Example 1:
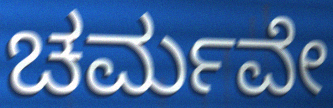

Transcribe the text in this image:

ಚರ್ಮವೇ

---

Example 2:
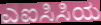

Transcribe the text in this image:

ಎಐಸಿಸಿಯ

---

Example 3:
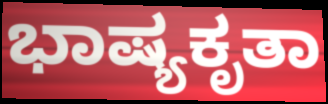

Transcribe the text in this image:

ಭಾಷ್ಯಕೃತಾ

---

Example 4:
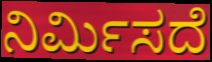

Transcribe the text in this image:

ನಿರ್ಮಿಸದೆ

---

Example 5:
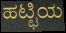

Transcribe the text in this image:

ಹಟ್ಟಿಯ